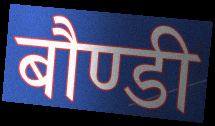
बौण्डी